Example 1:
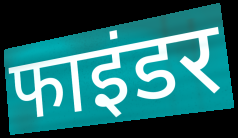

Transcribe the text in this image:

फाइंडर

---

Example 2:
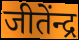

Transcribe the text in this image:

जीतेंन्द्र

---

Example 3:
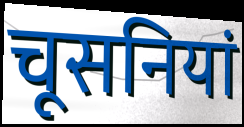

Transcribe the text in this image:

चूसनियां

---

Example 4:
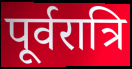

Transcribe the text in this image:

पूर्वरात्रि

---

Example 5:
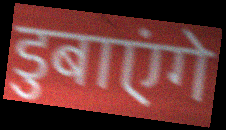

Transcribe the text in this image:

डुबाएंगे